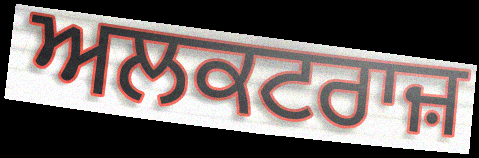
ਅਲਕਟਰਾਜ਼